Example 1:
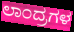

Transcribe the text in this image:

ಲಾಂದ್ರಗಳ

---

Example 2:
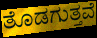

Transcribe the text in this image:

ತೊಡಗುತ್ತವೆ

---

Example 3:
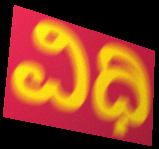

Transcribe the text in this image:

ವಿಧಿ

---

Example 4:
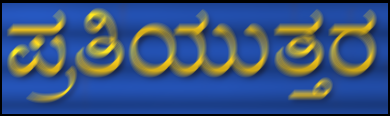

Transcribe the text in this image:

ಪ್ರತಿಯುತ್ತರ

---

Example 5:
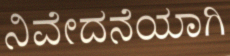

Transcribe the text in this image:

ನಿವೇದನೆಯಾಗಿ